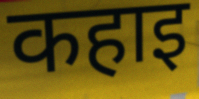
कहाइ